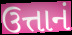
ઉત્તાનં